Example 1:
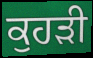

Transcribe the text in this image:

ਕੁਹੜੀ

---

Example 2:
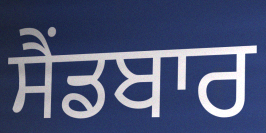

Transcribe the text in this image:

ਸੈਂਡਬਾਰ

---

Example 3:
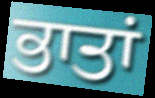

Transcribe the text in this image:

ਭਾਤਾਂ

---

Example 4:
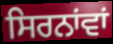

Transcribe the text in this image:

ਸਿਰਨਾਂਵਾਂ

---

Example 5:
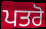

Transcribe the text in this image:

ਪਤਰੋ